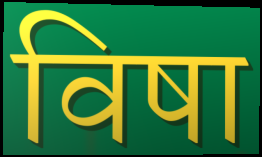
विषा